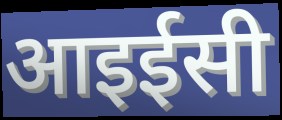
आइईसी